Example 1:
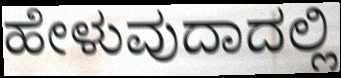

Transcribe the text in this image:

ಹೇಳುವುದಾದಲ್ಲಿ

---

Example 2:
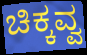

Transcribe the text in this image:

ಚಿಕ್ಕವ್ವ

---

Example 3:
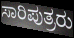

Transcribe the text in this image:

ಸಾರಿಪುತ್ರರು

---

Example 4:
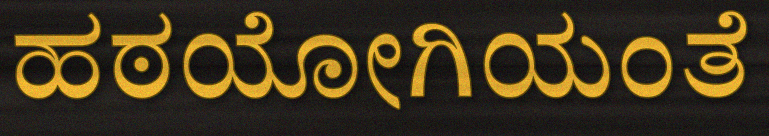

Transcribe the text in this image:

ಹಠಯೋಗಿಯಂತೆ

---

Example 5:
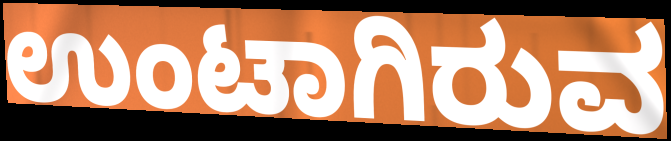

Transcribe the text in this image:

ಉಂಟಾಗಿರುವ